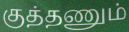
குத்தணும்